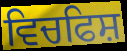
ਵਿਚਫਿਸ਼